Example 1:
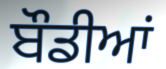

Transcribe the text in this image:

ਬੌਡੀਆਂ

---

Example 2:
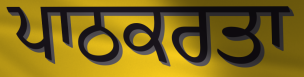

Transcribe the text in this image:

ਪਾਠਕਰਤਾ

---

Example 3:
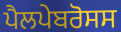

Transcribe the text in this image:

ਪੈਲਪੇਬਰੋਸਸ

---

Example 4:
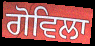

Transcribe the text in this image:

ਗੋਵਿਲਾ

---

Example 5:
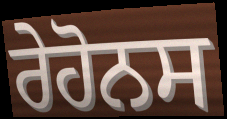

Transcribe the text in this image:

ਰੇਹੋਨਸ